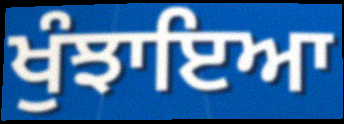
ਖੁੰਝਾਇਆ